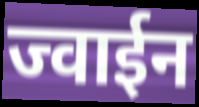
ज्वाईन